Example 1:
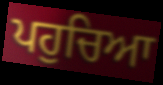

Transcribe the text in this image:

ਪਹੁਚਿਆ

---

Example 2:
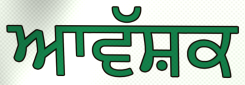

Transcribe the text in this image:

ਆਵੱਸ਼ਕ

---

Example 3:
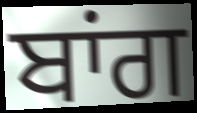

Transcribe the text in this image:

ਬਾਂਗ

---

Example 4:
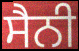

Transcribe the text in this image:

ਸੈਨੀ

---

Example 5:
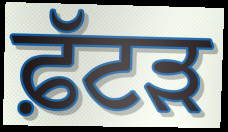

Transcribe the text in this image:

ਫ਼ੱਟੜ